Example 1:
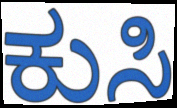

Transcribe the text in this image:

ಕುಸಿ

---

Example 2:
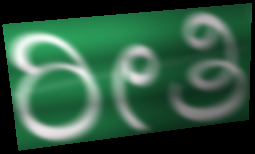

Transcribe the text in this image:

ರೀತಿ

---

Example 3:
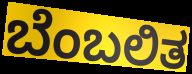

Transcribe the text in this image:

ಬೆಂಬಲಿತ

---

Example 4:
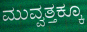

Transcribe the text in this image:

ಮುವ್ವತ್ತಕ್ಕೂ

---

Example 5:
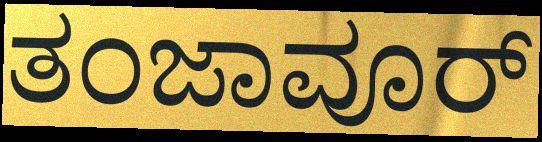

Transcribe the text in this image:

ತಂಜಾವೂರ್